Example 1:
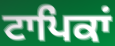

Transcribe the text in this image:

ਟਾਪਿਕਾਂ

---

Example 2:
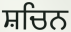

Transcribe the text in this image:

ਸ਼ਚਿਨ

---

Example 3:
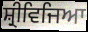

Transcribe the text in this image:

ਸ਼੍ਰੀਵਿਜਿਆ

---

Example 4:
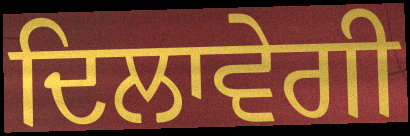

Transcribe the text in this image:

ਦਿਲਾਵੇਗੀ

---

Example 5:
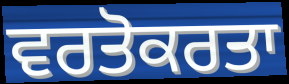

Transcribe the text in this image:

ਵਰਤੋਕਰਤਾ